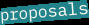
proposals